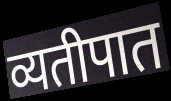
व्यतीपात